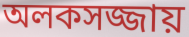
অলকসজ্জায়